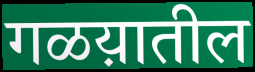
गळय़ातील